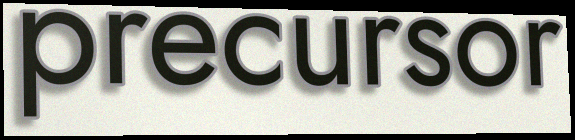
precursor